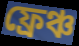
ফ্ৰেঞ্চ